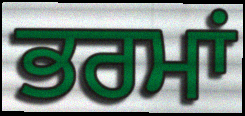
ਭਰਮਾਂ